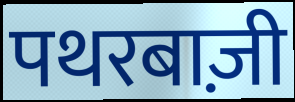
पथरबाज़ी